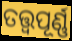
ତତ୍ତ୍ୱପୂର୍ଣ୍ଣ